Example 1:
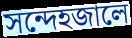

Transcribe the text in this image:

সন্দেহজালে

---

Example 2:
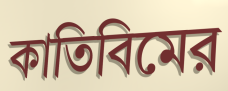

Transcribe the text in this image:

কাতিবিমের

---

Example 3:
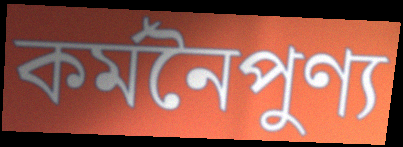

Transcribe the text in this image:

কর্মনৈপুণ্য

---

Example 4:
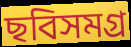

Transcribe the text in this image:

ছবিসমগ্র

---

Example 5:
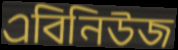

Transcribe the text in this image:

এবিনিউজ